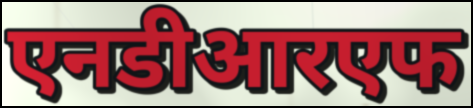
एनडीआरएफ